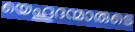
യെഹൂദന്മാരുടെ